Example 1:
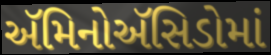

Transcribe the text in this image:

ઍમિનોઍસિડોમાં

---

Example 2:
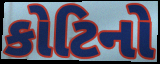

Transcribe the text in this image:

કોટિનો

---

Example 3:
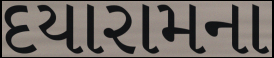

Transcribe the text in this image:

દયારામના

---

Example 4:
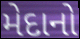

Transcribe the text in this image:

મેદાનો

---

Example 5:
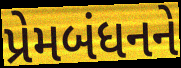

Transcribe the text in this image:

પ્રેમબંધનને